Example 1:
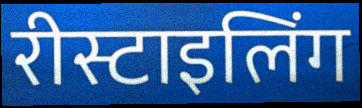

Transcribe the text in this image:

रीस्टाइलिंग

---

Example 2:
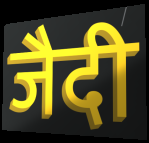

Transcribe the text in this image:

जैदी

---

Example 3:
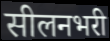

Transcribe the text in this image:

सीलनभरी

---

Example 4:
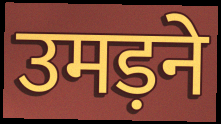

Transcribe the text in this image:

उमड़ने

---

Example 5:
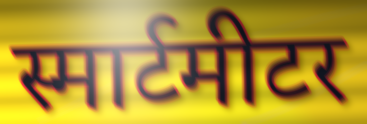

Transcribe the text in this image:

स्मार्टमीटर